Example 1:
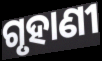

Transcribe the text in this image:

ଗୃହାଣୀ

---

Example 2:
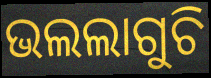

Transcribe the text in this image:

ଭଲଲାଗୁଚି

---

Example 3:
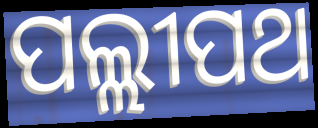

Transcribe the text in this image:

ପଲ୍ଲୀପଥ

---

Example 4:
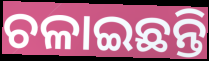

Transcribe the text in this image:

ଚଳାଇଛନ୍ତି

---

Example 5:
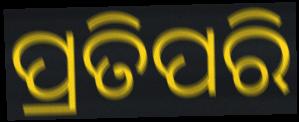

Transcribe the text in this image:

ପ୍ରତିପରି